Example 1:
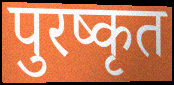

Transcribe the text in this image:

पुरष्कृत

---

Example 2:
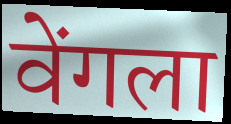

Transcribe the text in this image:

वेंगला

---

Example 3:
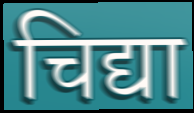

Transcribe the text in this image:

चिद्या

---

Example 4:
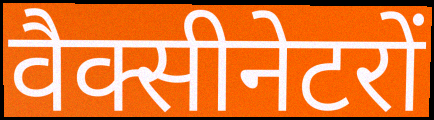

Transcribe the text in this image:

वैक्सीनेटरों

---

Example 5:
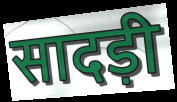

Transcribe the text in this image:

सादड़ी